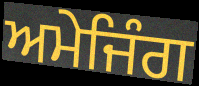
ਅਮੇਜਿੰਗ